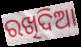
ରଖିଦିଆ